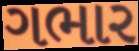
ગભાર